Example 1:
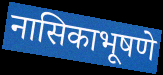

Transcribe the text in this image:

नासिकाभूषणे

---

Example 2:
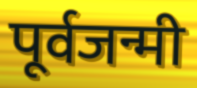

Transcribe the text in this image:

पूर्वजन्मी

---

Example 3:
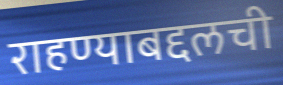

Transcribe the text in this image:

राहण्याबद्दलची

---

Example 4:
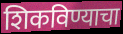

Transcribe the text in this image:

शिकविण्याचा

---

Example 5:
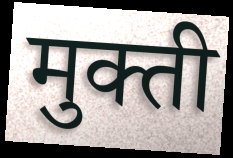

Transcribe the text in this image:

मुक्ती